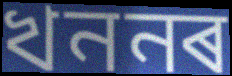
খননৰ